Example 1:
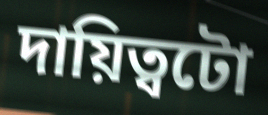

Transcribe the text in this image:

দায়িত্বটো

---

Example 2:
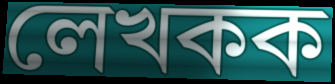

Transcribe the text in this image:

লেখকক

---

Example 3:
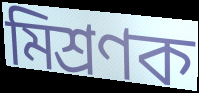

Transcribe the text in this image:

মিশ্ৰণক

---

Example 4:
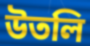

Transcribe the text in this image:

উতলি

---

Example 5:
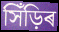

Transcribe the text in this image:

সিঁড়িৰ